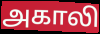
அகாலி